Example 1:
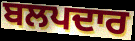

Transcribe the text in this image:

ਬਲਪਦਾਰ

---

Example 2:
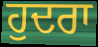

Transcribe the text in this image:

ਹੁਦਰਾ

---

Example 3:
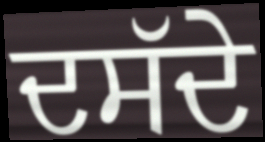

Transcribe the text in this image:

ਦਸੱਦੇ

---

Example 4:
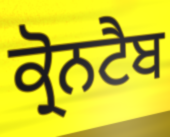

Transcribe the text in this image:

ਕ੍ਰੋਨਟੈਬ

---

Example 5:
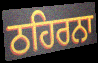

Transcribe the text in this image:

ਠਹਿਰਨਾ